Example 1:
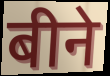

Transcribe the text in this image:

बीने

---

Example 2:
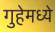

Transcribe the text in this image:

गुहेमध्ये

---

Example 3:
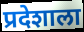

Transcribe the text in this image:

प्रदेशाला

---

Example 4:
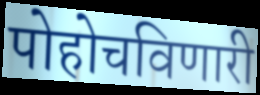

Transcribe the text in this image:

पोहोचविणारी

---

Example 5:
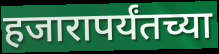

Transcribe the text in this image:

हजारापर्यंतच्या